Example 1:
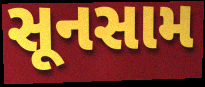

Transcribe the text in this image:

સૂનસામ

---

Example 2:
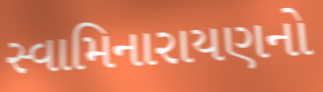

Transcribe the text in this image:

સ્વામિનારાયણનો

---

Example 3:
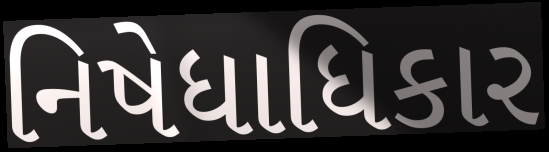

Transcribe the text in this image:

નિષેધાધિકાર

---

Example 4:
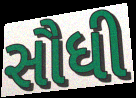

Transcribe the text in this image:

સૌધી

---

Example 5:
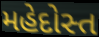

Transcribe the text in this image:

મહેદોસ્ત